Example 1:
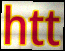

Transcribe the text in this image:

htt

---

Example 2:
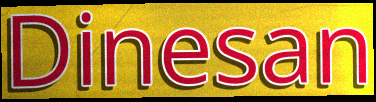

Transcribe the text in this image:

Dinesan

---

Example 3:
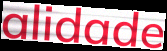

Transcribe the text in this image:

alidade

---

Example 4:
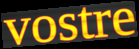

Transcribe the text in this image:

vostre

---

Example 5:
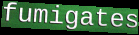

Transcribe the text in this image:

fumigates